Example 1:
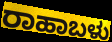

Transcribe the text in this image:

ರಾಹಾಬಳು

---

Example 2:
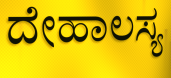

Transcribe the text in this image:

ದೇಹಾಲಸ್ಯ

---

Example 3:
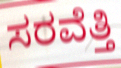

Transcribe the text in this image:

ಸರವೆತ್ತಿ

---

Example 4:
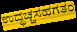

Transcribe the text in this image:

ಉದ್ಧಚ್ಚಸಹಗತಂ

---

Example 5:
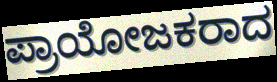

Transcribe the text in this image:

ಪ್ರಾಯೋಜಕರಾದ